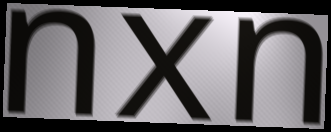
nxn